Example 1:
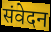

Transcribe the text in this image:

संवेदन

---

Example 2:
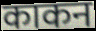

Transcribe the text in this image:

काकन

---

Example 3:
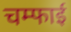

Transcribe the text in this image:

चम्फाई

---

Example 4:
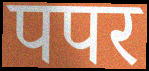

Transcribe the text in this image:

पपर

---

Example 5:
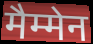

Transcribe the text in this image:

मैम्मेन